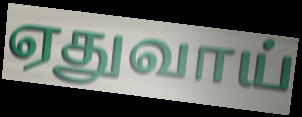
ஏதுவாய்